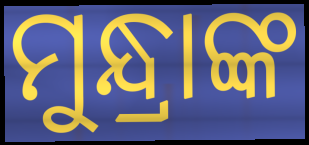
ମୁନ୍ଧ୍ରାଙ୍କ